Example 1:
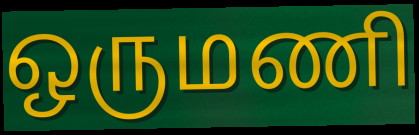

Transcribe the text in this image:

ஒருமணி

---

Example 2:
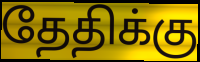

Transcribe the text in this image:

தேதிக்கு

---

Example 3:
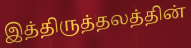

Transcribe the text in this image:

இத்திருத்தலத்தின்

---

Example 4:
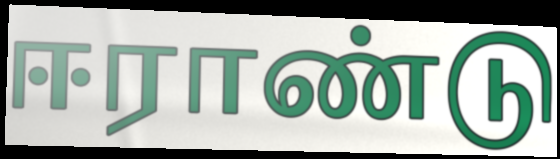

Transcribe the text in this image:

ஈராண்டு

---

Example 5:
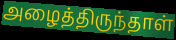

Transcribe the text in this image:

அழைத்திருந்தாள்